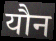
यौन